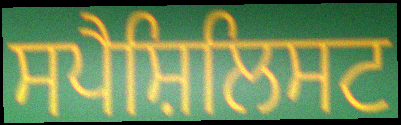
ਸਪੈਸ਼ਿਲਿਸਟ